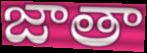
జాతా